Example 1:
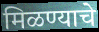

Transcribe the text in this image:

मिळण्याचे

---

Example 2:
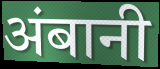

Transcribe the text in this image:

अंबानी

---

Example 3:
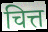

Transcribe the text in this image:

चित्त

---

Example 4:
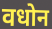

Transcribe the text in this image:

वधोन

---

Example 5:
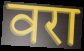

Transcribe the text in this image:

वरा